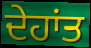
ਦੇਹਾਂਤ